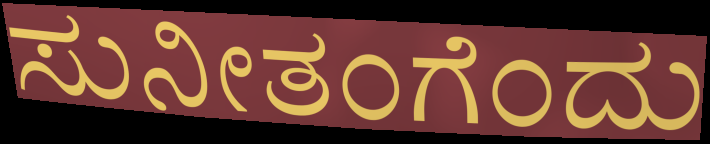
ಸುನೀತಂಗೆಂದು